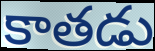
కాతడు